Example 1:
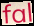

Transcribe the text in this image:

fal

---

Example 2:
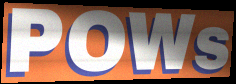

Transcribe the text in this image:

POWs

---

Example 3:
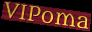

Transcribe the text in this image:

VIPoma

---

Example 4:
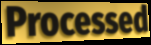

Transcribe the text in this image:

Processed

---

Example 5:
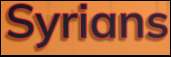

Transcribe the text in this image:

Syrians